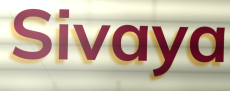
Sivaya